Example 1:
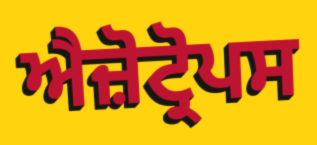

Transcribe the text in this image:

ਐਜ਼ੋਟ੍ਰੋਪਸ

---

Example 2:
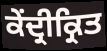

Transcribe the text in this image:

ਕੇਂਦ੍ਰੀਕ੍ਰਿਤ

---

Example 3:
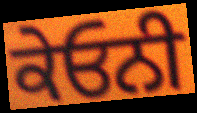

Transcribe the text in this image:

ਕੇਓਨੀ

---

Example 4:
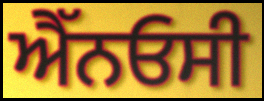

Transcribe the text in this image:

ਐੱਨਓਸੀ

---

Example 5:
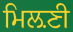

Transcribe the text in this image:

ਮਿਲ਼ਣੀ